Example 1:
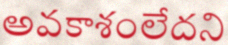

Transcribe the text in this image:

అవకాశంలేదని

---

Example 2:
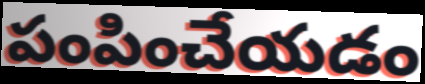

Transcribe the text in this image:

పంపించేయడం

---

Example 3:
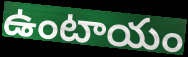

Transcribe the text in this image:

ఉంటాయం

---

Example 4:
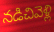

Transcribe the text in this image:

నడిచివెళ్లి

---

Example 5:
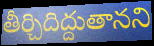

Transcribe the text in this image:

తీర్చిదిద్దుతానని